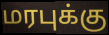
மரபுக்கு